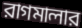
রাগমালার